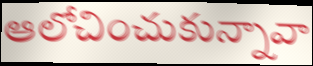
ఆలోచించుకున్నావా